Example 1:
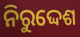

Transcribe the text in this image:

ନିରୁଦ୍ଦେଶ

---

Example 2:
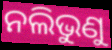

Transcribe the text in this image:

ନଲିଭୁଣୁ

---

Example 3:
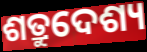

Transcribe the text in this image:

ଶତ୍ରୁଦେଶ୍ୟ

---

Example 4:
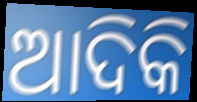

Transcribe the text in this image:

ଆଦିକି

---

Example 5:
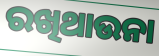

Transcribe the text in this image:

ରଖିଥାଉନା